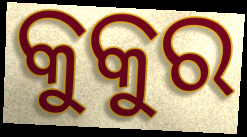
କୁକୁର